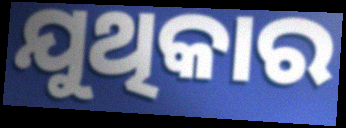
ଯୁଥିକାର